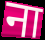
ना